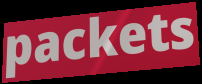
packets